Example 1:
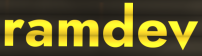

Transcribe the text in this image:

ramdev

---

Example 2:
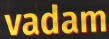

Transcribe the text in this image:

vadam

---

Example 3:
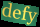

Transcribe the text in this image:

defy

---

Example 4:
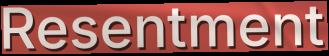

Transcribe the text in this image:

Resentment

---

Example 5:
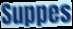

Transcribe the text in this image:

Suppes